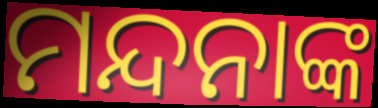
ମନ୍ଦନାଙ୍କ